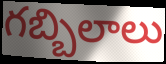
గబ్బిలాలు